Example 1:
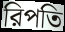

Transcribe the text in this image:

রিপতি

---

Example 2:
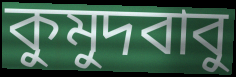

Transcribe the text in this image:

কুমুদবাবু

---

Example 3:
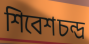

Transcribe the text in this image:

শিবেশচন্দ্র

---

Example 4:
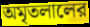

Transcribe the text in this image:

অমৃতলালের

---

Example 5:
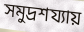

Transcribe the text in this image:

সমুদ্রশয্যায়